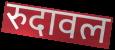
रुदावल